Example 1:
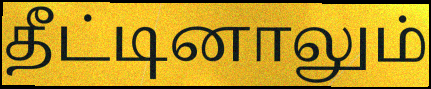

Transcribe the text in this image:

தீட்டினாலும்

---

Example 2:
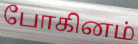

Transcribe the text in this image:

போகினம்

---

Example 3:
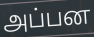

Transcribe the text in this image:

அப்பன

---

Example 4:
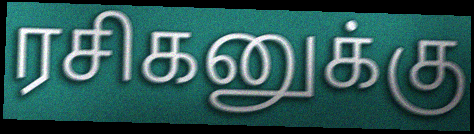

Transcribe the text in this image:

ரசிகனுக்கு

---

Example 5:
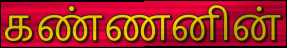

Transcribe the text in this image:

கண்ணனின்